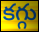
కగ్గు